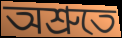
অশ্রুতে